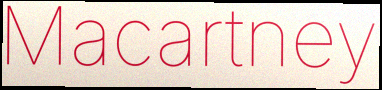
Macartney